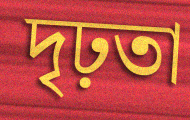
দৃঢ়তা